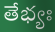
తేభ్యః